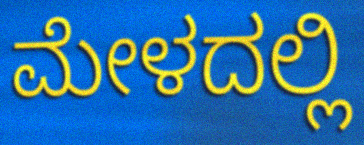
ಮೇಳದಲ್ಲಿ